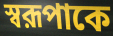
স্বরূপাকে